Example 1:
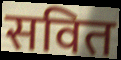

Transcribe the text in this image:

सवित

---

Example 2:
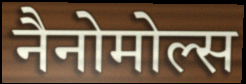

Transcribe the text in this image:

नैनोमोल्स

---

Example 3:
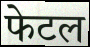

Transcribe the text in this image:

फेटल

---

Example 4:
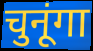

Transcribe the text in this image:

चुनूंगा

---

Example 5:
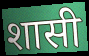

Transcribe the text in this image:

शासी